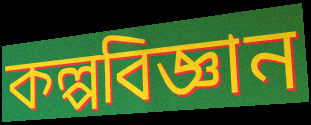
কল্পবিজ্ঞান